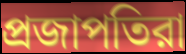
প্রজাপতিরা